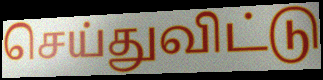
செய்துவிட்டு